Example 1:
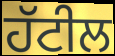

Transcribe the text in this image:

ਹੱਟੀਲ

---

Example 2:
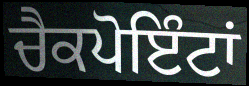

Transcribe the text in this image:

ਚੈਕਪੋਇੰਟਾਂ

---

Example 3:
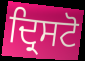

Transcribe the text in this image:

ਦ੍ਰਿਸਟੋ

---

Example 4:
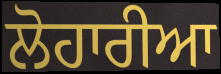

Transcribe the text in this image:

ਲੋਹਾਰੀਆ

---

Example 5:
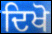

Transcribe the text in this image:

ਦਿਖੋ